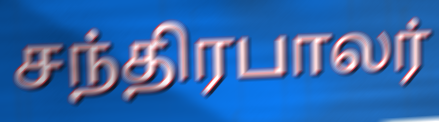
சந்திரபாலர்